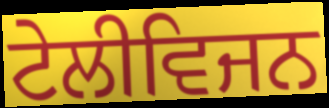
ਟੇਲੀਵਿਜਨ